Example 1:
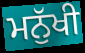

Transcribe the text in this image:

ਮਨੁੱਖੀ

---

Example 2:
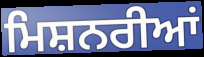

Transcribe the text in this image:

ਮਿਸ਼ਨਰੀਆਂ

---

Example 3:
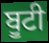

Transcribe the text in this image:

ਬੂਟੀ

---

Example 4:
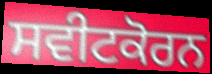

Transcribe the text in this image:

ਸਵੀਟਕੋਰਨ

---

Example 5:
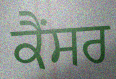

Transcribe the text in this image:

ਕੈਂਸਰ